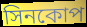
সিনকোপ